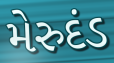
મેરુદંડ